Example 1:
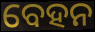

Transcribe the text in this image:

ବେହନ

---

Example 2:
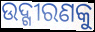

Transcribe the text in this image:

ଉଦ୍ଗୀରଣକୁ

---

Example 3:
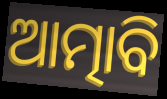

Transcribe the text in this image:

ଆତ୍ମାବି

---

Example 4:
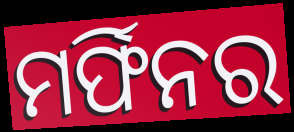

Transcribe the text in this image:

ମର୍ଫିନର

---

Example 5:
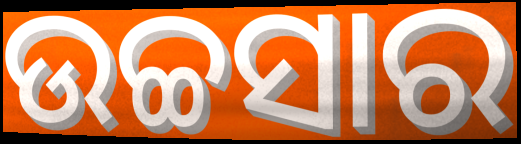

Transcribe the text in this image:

ଉଚ୍ଚସାର